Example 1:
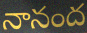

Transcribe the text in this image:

నానంద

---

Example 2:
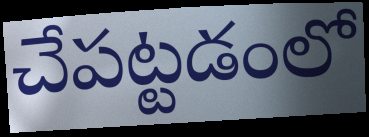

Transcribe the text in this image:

చేపట్టడంలో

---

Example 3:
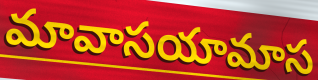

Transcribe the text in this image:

మావాసయామాస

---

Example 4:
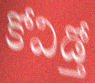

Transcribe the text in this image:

కోవిడ్తో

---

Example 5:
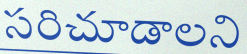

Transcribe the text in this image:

సరిచూడాలని